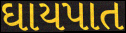
ઘાયપાત